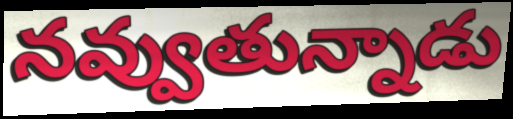
నవ్వుతున్నాడు